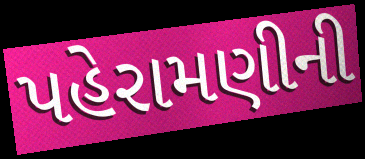
પહેરામણીની